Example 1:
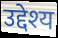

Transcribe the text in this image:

उद्देश्‍य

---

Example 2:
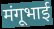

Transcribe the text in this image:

मंगूभाई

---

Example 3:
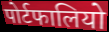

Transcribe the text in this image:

पोर्टफालियो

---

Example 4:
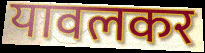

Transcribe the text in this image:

यावलकर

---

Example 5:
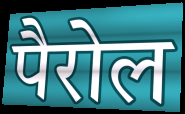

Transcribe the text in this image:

पैरोल